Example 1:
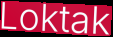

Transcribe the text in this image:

Loktak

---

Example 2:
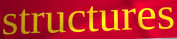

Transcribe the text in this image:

structures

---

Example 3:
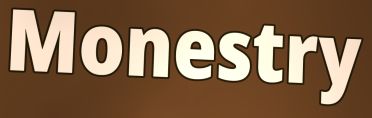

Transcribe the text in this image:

Monestry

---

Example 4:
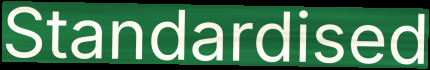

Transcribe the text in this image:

Standardised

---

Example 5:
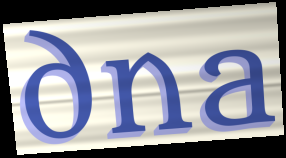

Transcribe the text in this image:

dna